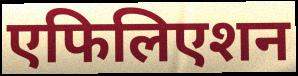
एफिलिएशन